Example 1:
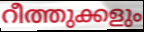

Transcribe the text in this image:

റീത്തുക്കളും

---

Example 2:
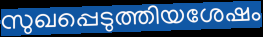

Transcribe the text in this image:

സുഖപ്പെടുത്തിയശേഷം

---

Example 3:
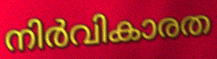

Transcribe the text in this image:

നിർവികാരത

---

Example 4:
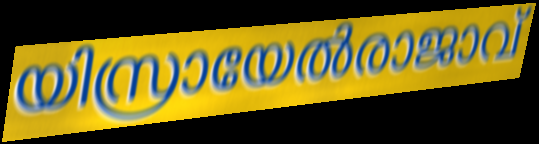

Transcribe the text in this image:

യിസ്രായേൽരാജാവ്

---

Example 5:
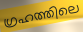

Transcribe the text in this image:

ഗ്രഹത്തിലെ